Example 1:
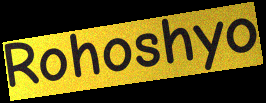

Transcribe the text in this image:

Rohoshyo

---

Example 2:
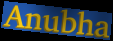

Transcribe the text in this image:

Anubha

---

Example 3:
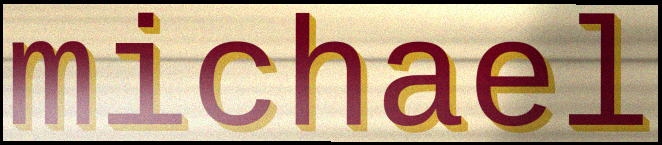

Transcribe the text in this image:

michael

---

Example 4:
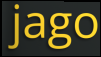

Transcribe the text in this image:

jago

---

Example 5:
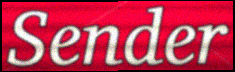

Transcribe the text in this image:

Sender